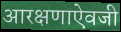
आरक्षणाऐवजी